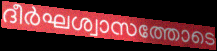
ദീർഘശ്വാസത്തോടെ